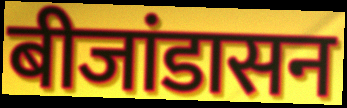
बीजांडासन